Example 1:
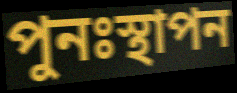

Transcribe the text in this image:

পুনঃস্থাপন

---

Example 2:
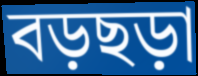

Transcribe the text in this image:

বড়ছড়া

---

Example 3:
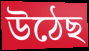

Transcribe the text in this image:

উঠেছ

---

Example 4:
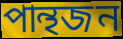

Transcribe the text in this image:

পান্থজন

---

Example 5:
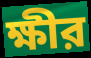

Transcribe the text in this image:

ক্ষীর